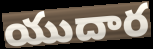
యుదార